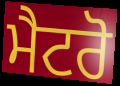
ਮੈਟਰੋ